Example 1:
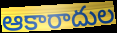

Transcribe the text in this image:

ఆకారాదుల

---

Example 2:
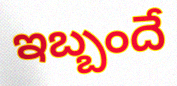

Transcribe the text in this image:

ఇబ్బందే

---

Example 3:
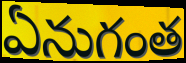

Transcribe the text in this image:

ఏనుగంత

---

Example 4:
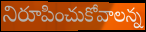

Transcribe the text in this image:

నిరూపించుకోవాలన్న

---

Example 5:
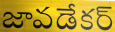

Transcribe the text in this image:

జావడేకర్